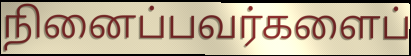
நினைப்பவர்களைப்